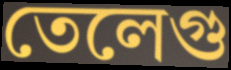
তেলেগু